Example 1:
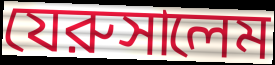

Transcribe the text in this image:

যেরুসালেম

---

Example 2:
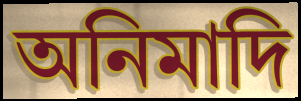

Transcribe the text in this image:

অনিমাদি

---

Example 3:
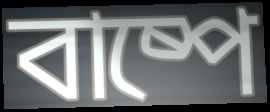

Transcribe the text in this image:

বাষ্পে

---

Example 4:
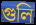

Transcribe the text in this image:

গুলি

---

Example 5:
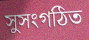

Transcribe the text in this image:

সুসংগঠিত